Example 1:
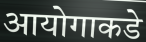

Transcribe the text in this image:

आयोगाकडे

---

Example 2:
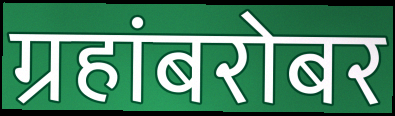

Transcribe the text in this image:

ग्रहांबरोबर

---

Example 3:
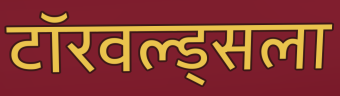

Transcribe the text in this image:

टॉरवल्ड्सला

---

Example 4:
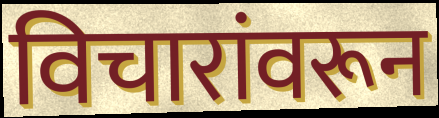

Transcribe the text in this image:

विचारांवरून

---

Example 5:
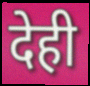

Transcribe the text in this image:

देही